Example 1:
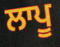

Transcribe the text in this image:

ਲਾਪੂ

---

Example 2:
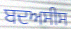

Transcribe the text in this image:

ਬਦਅਸੀਸ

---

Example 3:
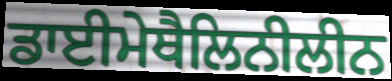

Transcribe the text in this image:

ਡਾਈਮੇਥੈਲਿਨੀਲੀਨ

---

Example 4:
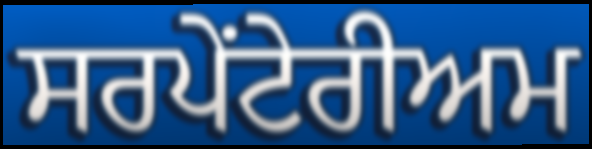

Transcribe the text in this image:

ਸਰਪੇਂਟੇਰੀਅਮ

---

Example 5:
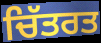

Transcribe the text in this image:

ਚਿੱਤਰਤ